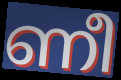
ണീ